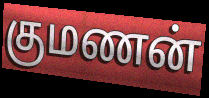
குமணன்